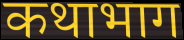
कथाभाग